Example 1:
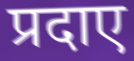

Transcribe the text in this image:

प्रदाए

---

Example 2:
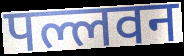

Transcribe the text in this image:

पल्लवन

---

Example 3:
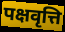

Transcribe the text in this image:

पक्षवृत्ति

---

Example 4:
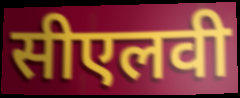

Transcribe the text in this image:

सीएलवी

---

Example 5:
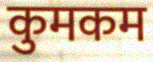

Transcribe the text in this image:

कुमकम